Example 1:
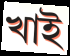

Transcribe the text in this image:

খাই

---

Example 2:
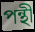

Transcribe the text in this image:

পন্থী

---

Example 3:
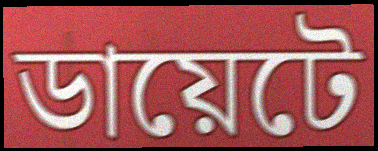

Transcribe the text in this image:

ডায়েটে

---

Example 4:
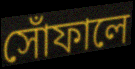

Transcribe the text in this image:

সোঁফালে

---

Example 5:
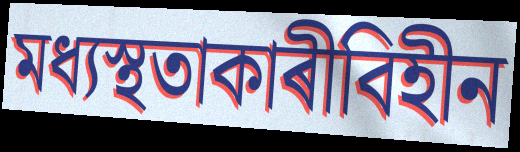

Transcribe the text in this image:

মধ্যস্থতাকাৰীবিহীন